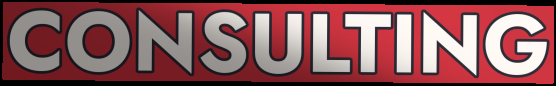
CONSULTING